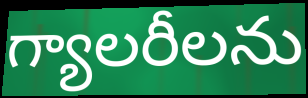
గ్యాలరీలను